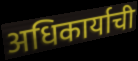
अधिकार्याची